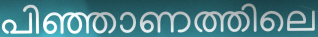
പിഞ്ഞാണത്തിലെ